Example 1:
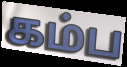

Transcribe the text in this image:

கம்ப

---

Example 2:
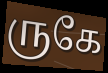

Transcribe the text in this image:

ருகே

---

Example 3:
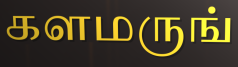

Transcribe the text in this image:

களமருங்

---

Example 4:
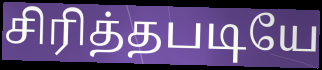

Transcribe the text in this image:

சிரித்தபடியே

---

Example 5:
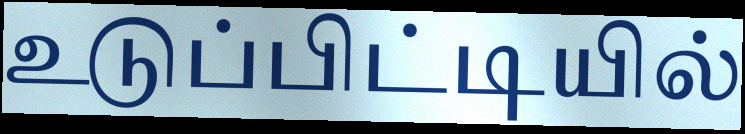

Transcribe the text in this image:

உடுப்பிட்டியில்